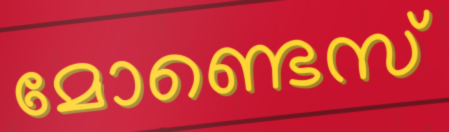
മോണ്ടെസ്